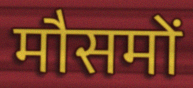
मौसमों